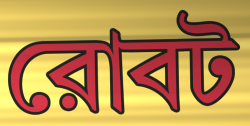
রোবট